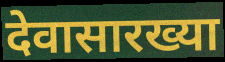
देवासारख्या